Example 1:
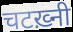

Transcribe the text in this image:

चटख़्नी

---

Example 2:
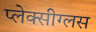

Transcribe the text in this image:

प्लेक्सीग्लस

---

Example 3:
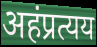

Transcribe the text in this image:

अहंप्रत्यय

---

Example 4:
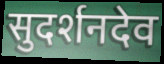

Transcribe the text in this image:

सुदर्शनदेव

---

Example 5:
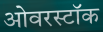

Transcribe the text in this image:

ओवरस्टॉक